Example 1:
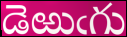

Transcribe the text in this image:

డెఱుఁగు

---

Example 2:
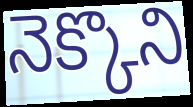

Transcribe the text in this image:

నెక్కొని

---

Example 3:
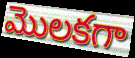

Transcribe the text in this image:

మొలకగా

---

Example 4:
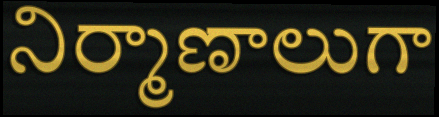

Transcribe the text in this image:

నిర్మాణాలుగా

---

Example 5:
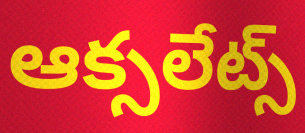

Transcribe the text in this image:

ఆక్సలేట్స్